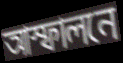
আস্ফালনে